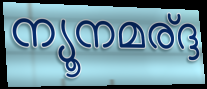
ന്യൂനമര്ദ്ദ